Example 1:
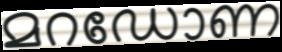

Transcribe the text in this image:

മറഡോണ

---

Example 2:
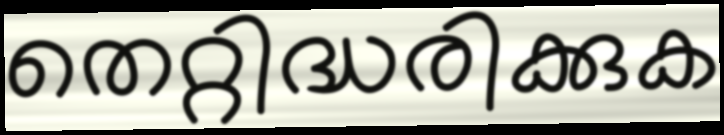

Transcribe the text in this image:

തെറ്റിദ്ധരിക്കുക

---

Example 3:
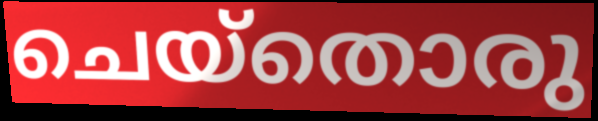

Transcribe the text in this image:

ചെയ്തൊരു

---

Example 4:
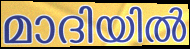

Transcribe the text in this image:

മാദിയിൽ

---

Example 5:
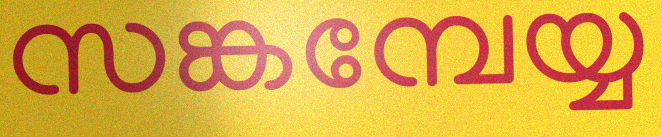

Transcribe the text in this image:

സങ്കമ്പേയ്യ